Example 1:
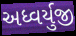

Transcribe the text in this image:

અધ્વર્યુજી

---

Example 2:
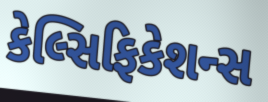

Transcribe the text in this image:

કેલ્સિફિકેશન્સ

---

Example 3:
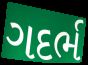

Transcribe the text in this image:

ગદર્ભ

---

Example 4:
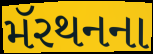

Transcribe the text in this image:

મૅરથનના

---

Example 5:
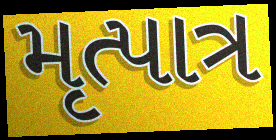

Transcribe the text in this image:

મૃત્પાત્ર